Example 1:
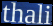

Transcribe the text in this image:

thali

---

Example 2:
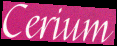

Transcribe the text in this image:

Cerium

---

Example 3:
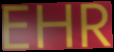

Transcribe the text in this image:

EHR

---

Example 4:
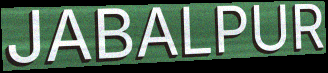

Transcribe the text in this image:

JABALPUR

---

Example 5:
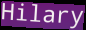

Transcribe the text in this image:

Hilary